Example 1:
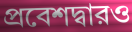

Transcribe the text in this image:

প্রবেশদ্বারও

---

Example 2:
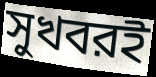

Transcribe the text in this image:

সুখবরই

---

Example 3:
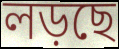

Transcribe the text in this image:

লড়ছে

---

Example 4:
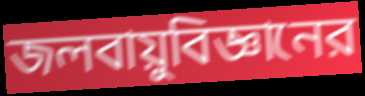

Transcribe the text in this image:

জলবায়ুবিজ্ঞানের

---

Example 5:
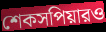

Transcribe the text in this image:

শেকসপিয়ারও